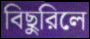
বিছুরিলে